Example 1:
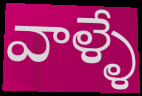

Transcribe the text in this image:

వాళ్ళే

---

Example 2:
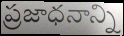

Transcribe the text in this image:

ప్రజాధనాన్ని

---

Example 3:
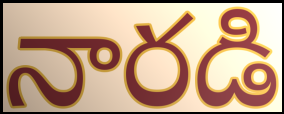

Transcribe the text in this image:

నారడి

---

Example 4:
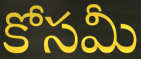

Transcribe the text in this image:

కోసమీ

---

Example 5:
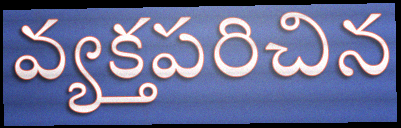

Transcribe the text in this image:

వ్యక్తపరిచిన